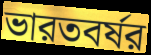
ভারতবর্ষর